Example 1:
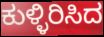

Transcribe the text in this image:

ಕುಳ್ಳಿರಿಸಿದ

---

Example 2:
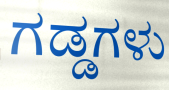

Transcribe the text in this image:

ಗಡ್ಡಗಳು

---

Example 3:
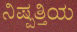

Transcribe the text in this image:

ನಿಷ್ಪತ್ತಿಯ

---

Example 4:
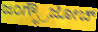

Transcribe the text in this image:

ಜಂಗ್ಫ್ರೌಜೋಚ್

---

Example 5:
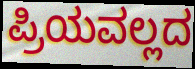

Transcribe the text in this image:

ಪ್ರಿಯವಲ್ಲದ